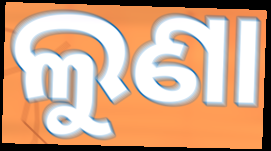
ଲୁଣା